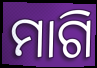
ମାଗି